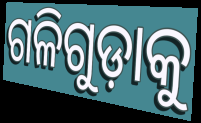
ଗଳିଗୁଡ଼ାକୁ